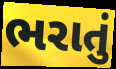
ભરાતું